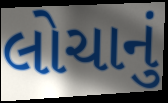
લોચાનું